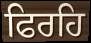
ਫਿਰਹਿ